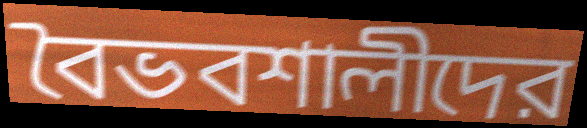
বৈভবশালীদের